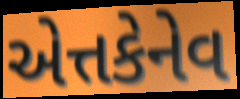
એત્તકેનેવ